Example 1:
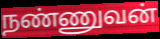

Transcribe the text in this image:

நண்ணுவன்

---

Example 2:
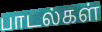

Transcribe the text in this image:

பாடல்கள்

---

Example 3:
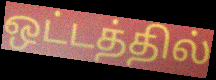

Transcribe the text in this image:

ஒட்டத்தில்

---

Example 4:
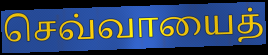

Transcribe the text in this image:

செவ்வாயைத்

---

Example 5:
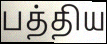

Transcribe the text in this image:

பத்திய